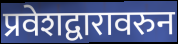
प्रवेशद्वारावरुन